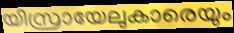
യിസ്രായേലുകാരെയും